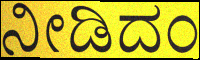
ನೀಡಿದಂ